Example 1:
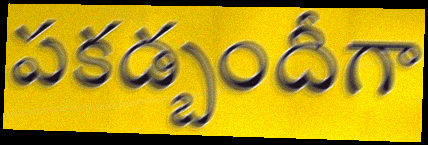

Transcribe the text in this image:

పకడ్బందీగా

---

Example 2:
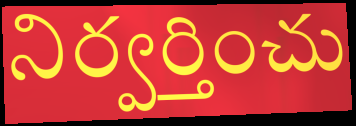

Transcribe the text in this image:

నిర్వర్తించు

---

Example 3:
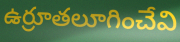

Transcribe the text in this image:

ఉర్రూతలూగించేవి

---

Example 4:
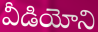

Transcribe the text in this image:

వీడియోని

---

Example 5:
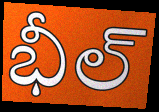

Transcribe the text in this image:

భీల్